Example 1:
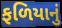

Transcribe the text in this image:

ફળિયાનું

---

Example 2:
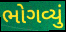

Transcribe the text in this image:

ભોગવ્યું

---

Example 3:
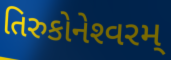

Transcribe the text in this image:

તિરુકોનેશ્‍વરમ્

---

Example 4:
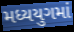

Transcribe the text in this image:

મધ્યયુગમાં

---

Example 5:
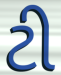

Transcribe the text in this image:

ટી